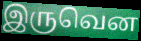
இருவென